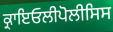
ਕ੍ਰਾਇਓਲੀਪੋਲੀਸਿਸ